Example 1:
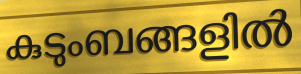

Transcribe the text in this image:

കുടുംബങ്ങളിൽ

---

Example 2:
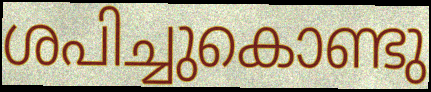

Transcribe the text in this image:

ശപിച്ചുകൊണ്ടു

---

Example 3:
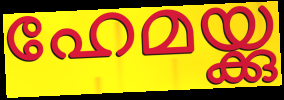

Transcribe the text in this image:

ഹേമയ്ക്കു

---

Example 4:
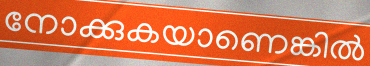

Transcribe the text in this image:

നോക്കുകയാണെങ്കിൽ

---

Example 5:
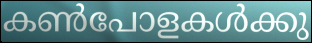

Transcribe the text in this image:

കൺപോളകൾക്കു